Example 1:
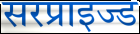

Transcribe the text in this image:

सरप्राइज्ड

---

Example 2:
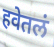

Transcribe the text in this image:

हवेतलं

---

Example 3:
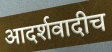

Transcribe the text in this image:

आदर्शवादीच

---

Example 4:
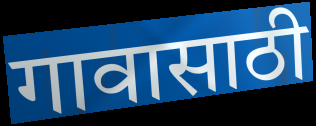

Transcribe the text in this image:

गावासाठी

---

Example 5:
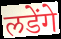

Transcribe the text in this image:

लडेंगे